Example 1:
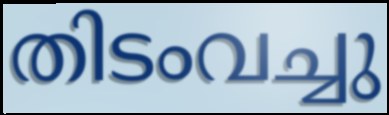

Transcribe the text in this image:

തിടംവച്ചു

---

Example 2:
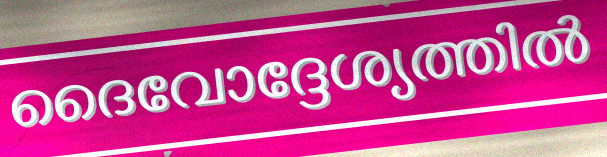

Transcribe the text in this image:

ദൈവോദ്ദേശ്യത്തിൽ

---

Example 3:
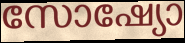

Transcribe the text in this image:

സോഷ്യോ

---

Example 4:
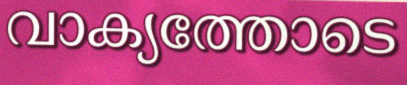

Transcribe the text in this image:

വാക്യത്തോടെ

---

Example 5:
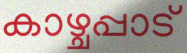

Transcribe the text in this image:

കാഴ്ചപ്പാട്